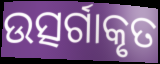
ଉତ୍ସର୍ଗାକୃତ